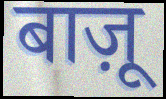
बाज़ू